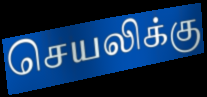
செயலிக்கு